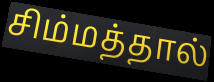
சிம்மத்தால்